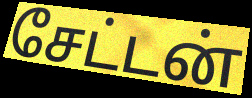
சேட்டன்